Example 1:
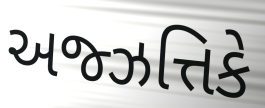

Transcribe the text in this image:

અજ્ઝત્તિકે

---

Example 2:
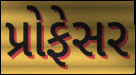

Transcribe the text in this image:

પ્રોફેસર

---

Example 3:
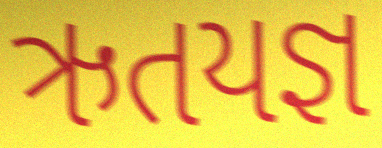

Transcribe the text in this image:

ઋતયજ્ઞ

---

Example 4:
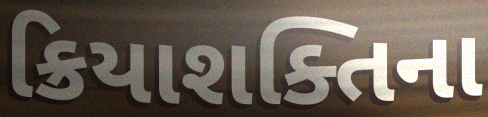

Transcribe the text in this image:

ક્રિયાશક્તિના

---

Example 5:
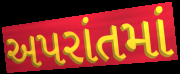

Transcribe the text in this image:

અપરાંતમાં